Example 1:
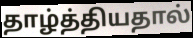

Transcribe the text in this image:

தாழ்த்தியதால்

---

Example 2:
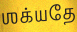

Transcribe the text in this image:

ஶக்யதே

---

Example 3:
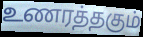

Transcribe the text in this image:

உணரத்தகும்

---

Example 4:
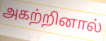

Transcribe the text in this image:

அகற்றினால்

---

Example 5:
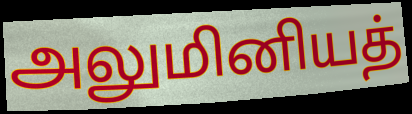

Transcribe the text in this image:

அலுமினியத்